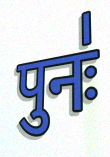
पुनः॑